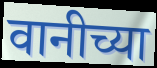
वानीच्या